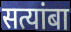
सत्यांबा